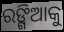
ରଙ୍ଗିଆକୁ